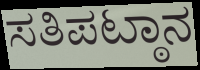
ಸತಿಪಟ್ಠಾನ